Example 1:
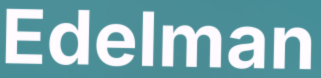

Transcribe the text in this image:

Edelman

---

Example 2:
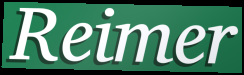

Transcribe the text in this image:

Reimer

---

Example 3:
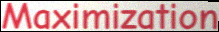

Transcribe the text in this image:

Maximization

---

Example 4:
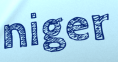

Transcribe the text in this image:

niger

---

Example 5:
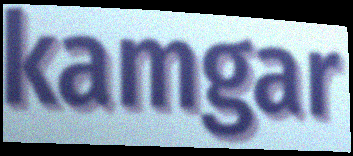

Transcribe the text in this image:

kamgar